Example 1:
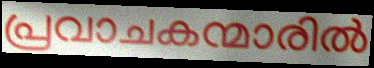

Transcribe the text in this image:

പ്രവാചകന്മാരിൽ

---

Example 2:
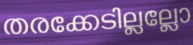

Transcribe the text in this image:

തരക്കേടില്ലല്ലോ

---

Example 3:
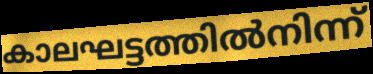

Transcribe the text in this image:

കാലഘട്ടത്തിൽനിന്ന്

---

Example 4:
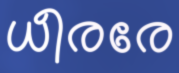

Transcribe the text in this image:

ധീരരേ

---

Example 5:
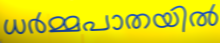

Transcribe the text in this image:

ധർമ്മപാതയിൽ